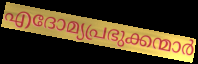
എദോമ്യപ്രഭുക്കന്മാർ